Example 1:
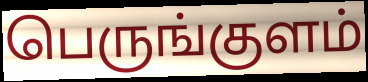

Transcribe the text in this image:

பெருங்குளம்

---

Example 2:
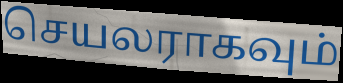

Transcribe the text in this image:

செயலராகவும்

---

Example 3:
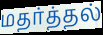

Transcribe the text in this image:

மதர்த்தல்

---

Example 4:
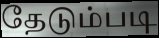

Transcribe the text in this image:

தேடும்படி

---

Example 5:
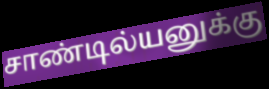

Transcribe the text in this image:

சாண்டில்யனுக்கு